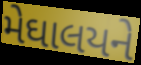
મેઘાલયને